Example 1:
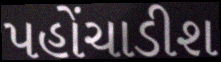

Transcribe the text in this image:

પહોંચાડીશ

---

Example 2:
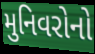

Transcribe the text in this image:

મુનિવરોનો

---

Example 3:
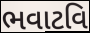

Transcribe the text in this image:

ભવાટવિ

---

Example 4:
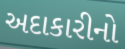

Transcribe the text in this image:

અદાકારીનો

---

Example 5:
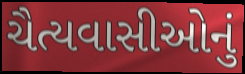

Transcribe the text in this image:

ચૈત્યવાસીઓનું